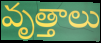
వృత్తాలు